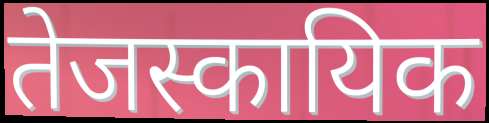
तेजस्कायिक